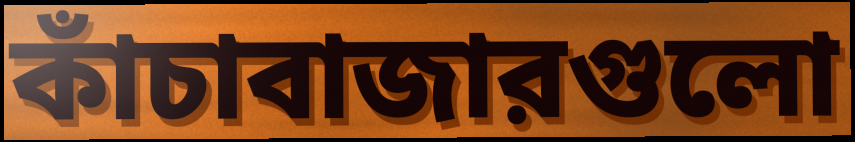
কাঁচাবাজারগুলো